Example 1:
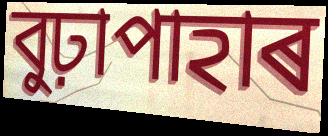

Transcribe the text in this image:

বুঢ়াপাহাৰ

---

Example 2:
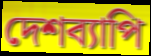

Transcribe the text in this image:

দেশব্যাপি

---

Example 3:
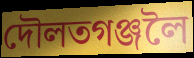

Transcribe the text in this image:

দৌলতগঞ্জলৈ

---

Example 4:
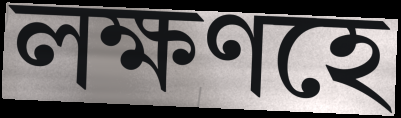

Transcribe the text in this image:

লক্ষণহে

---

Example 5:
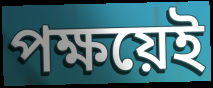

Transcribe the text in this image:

পক্ষয়েই